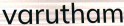
varutham